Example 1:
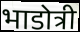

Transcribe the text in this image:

भाडोत्री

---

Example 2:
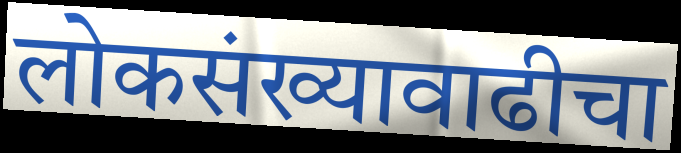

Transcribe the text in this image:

लोकसंख्यावाढीचा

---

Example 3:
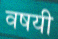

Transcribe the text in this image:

वषयी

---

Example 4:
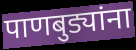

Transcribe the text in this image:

पाणबुड्यांना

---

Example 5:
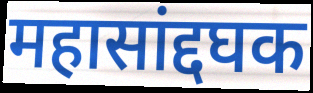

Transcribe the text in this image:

महासांद्दघक